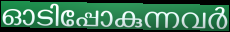
ഓടിപ്പോകുന്നവർ